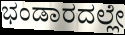
ಭಂಡಾರದಲ್ಲೇ